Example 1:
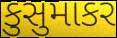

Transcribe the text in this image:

કુસુમાકર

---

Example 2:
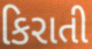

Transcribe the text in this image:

કિરાતી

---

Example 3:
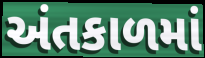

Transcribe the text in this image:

અંતકાળમાં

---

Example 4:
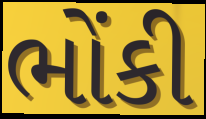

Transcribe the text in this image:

ભોંકી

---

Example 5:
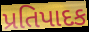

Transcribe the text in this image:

પ્રતિપાદક